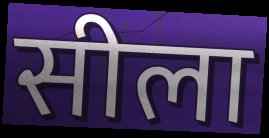
सीला